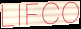
LIFCO